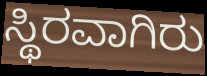
ಸ್ಥಿರವಾಗಿರು